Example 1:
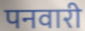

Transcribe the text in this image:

पनवारी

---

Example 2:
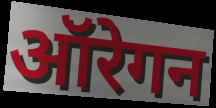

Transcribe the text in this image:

ऑरेगन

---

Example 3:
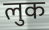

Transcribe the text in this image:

लुक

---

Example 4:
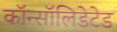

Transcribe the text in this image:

कॉन्सॉलिडेटेड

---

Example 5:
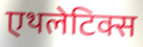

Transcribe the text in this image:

एथलेटिक्स